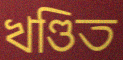
খণ্ডিত